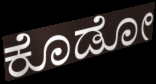
ಕೊಡೋ